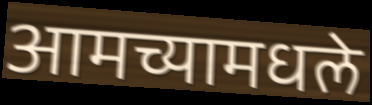
आमच्यामधले